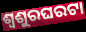
ଶ୍ୱଶୁରଘରଟା